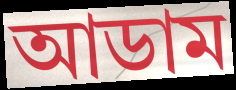
আডাম